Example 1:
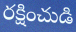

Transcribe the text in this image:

రక్షించుడి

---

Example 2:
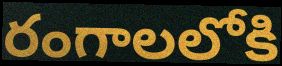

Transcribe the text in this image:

రంగాలలోకి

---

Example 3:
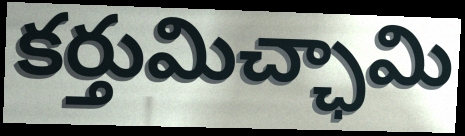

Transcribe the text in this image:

కర్తుమిచ్ఛామి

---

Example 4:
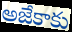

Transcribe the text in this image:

అజేకాకు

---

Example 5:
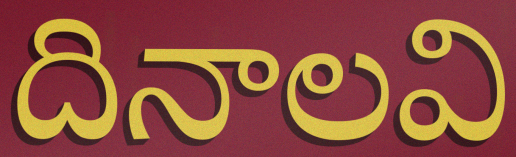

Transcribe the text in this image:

దినాలవి